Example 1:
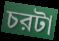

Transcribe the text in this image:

চরটা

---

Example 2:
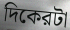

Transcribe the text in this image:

দিকেরটা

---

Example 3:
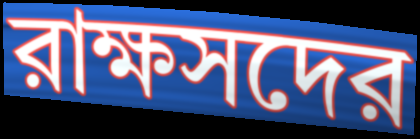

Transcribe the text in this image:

রাক্ষসদের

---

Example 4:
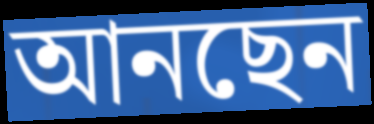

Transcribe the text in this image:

আনছেন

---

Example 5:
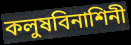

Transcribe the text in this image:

কলুষবিনাশিনী